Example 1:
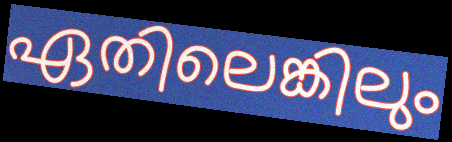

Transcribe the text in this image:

ഏതിലെങ്കിലും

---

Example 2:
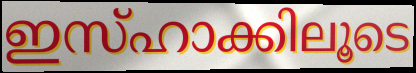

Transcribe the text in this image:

ഇസ്ഹാക്കിലൂടെ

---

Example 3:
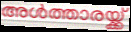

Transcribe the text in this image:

അൾത്താരയ്ക്ക്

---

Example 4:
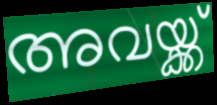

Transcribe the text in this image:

അവയ്ക്ക്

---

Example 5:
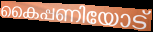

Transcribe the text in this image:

കൈപ്പണിയോട്